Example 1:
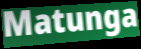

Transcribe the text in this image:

Matunga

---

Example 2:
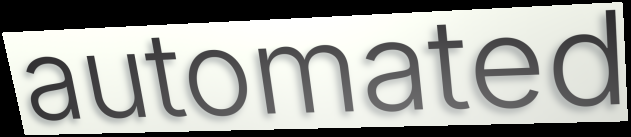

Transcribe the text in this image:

automated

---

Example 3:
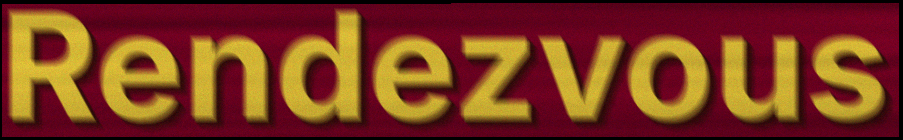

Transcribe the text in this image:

Rendezvous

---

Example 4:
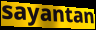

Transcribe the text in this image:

sayantan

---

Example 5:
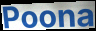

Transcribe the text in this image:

Poona